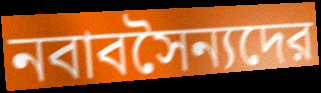
নবাবসৈন্যদের